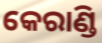
କେରାଣ୍ଡି